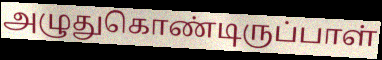
அழுதுகொண்டிருப்பாள்